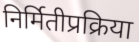
निर्मितीप्रक्रिया